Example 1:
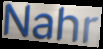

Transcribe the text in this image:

Nahr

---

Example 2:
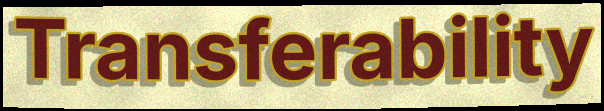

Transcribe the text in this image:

Transferability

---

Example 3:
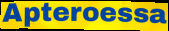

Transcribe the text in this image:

Apteroessa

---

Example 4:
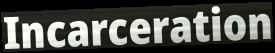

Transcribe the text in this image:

Incarceration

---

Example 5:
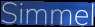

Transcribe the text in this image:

Simmel